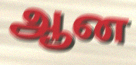
ஆன